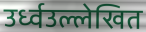
उर्ध्वउल्लेखित